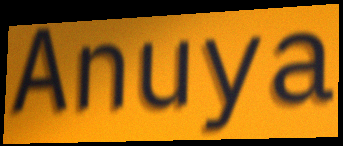
Anuya